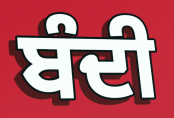
ਬੰਦੀ